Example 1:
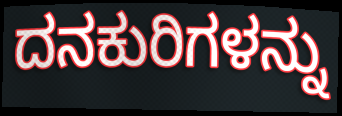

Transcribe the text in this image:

ದನಕುರಿಗಳನ್ನು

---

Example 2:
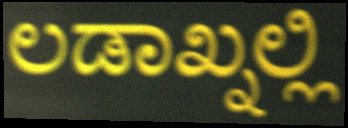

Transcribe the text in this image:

ಲಡಾಖ್ನಲ್ಲಿ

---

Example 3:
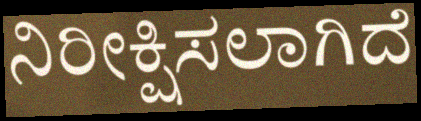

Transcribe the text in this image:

ನಿರೀಕ್ಷಿಸಲಾಗಿದೆ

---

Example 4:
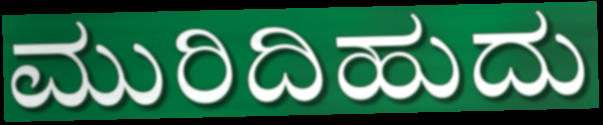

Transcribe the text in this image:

ಮುರಿದಿಹುದು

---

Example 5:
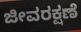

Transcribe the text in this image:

ಜೀವರಕ್ಷಣೆ